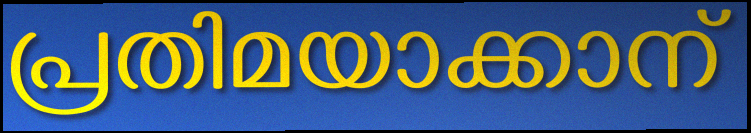
പ്രതിമയാക്കാന്